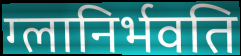
ग्लानिर्भवति